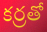
కర్రతో